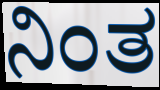
ನಿಂತ